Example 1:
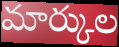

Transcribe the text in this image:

మార్కుల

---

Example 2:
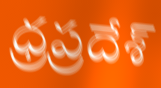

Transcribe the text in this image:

ధ్రప్రదేశ్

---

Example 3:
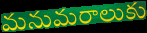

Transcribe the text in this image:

మనుమరాలుకు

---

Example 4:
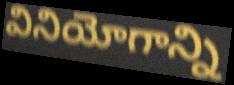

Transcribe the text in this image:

వినియోగాన్ని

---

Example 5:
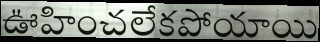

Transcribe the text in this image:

ఊహించలేకపోయాయి